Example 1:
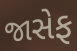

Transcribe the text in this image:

જાસેફ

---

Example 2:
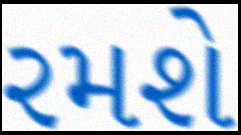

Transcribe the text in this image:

રમશે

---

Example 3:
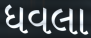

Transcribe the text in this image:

ધવલા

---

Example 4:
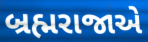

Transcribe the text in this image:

બ્રહ્મરાજાએ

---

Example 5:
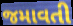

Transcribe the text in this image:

જમાવતી